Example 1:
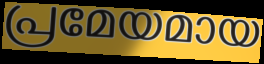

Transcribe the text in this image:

പ്രമേയമായ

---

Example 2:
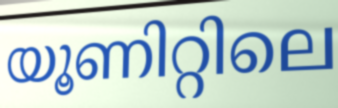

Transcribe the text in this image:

യൂണിറ്റിലെ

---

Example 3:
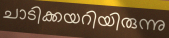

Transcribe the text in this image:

ചാടിക്കയറിയിരുന്നു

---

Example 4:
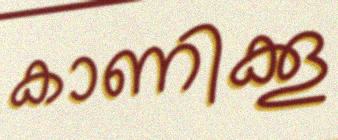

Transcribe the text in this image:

കാണിക്കൂ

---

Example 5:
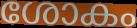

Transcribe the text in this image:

ശോകം